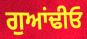
ਗੁਆਂਢੀਓ